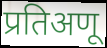
प्रतिअणू